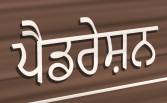
ਪੈਡਰੇਸ਼ਨ